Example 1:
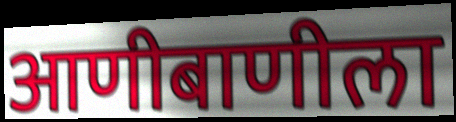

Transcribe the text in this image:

आणीबाणीला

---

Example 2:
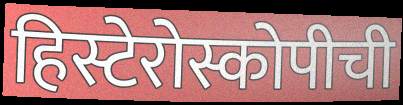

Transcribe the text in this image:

हिस्टेरोस्कोपीची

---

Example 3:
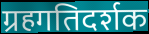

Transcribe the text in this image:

ग्रहगतिदर्शक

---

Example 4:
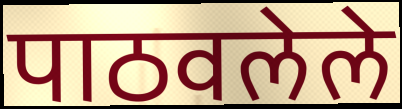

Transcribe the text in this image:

पाठवलेले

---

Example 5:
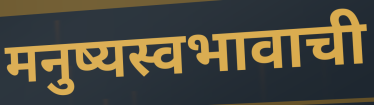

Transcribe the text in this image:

मनुष्यस्वभावाची